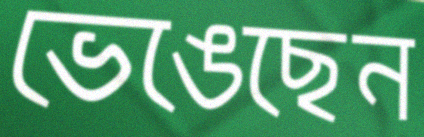
ভেঙেছেন